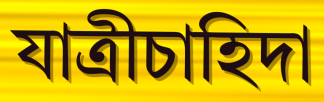
যাত্রীচাহিদা